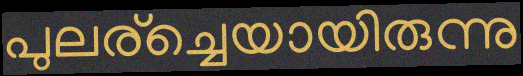
പുലര്ച്ചെയായിരുന്നു